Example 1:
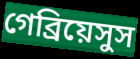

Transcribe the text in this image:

গেব্রিয়েসুস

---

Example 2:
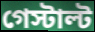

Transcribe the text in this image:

গেস্টাল্ট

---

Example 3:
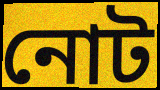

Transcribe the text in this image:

নোট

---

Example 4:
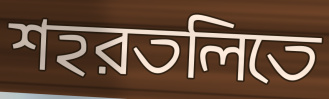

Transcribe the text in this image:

শহরতলিতে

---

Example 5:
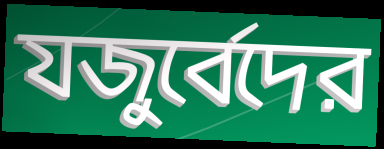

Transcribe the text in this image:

যজুর্বেদের